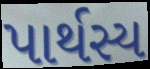
પાર્થસ્ય